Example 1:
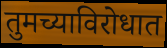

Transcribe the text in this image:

तुमच्याविरोधात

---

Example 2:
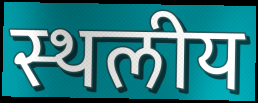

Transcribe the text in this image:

स्थलीय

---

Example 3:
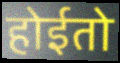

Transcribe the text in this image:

होईतो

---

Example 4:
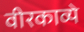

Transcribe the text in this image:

वीरकाव्ये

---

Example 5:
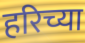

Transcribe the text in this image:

हरिच्या